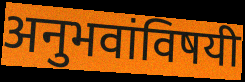
अनुभवांविषयी